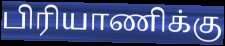
பிரியாணிக்கு